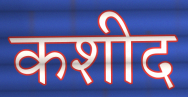
कशीद